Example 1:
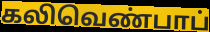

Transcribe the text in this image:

கலிவெண்பாப்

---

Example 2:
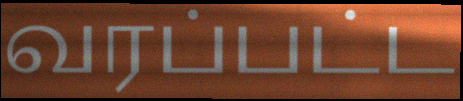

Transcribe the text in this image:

வரப்பட்ட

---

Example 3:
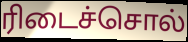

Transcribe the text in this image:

ரிடைச்சொல்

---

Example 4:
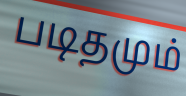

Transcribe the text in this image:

படிதமும்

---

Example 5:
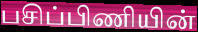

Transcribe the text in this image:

பசிப்பிணியின்